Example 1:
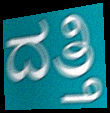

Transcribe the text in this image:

ದತ್ತಿ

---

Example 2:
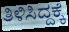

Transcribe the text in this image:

ತಿಳಿಸಿದ್ದಕ್ಕೆ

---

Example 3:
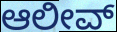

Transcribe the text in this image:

ಆಲೀವ್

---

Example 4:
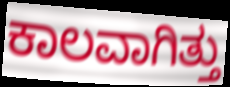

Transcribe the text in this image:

ಕಾಲವಾಗಿತ್ತು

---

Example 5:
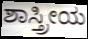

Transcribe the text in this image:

ಶಾಸ್ತ್ರೀಯ